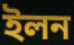
ইলন